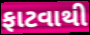
ફાટવાથી